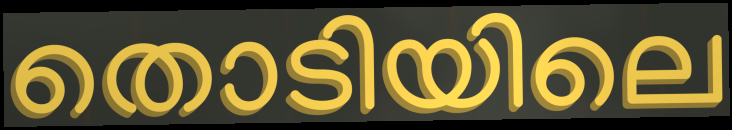
തൊടിയിലെ